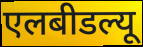
एलबीडल्यू